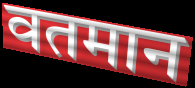
वतमान